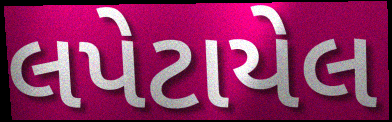
લપેટાયેલ